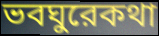
ভবঘুরেকথা